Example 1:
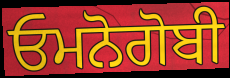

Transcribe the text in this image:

ਓਮਨੋਗੋਬੀ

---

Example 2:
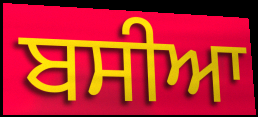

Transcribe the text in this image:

ਬਸੀਆ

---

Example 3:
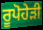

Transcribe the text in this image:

ਰੂਪੋਹੇੜੀ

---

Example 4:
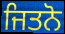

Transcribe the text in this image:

ਜਿਤਨੋ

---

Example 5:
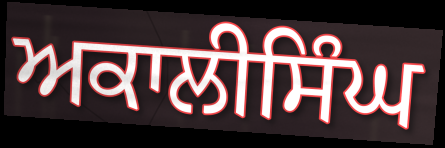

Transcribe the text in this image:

ਅਕਾਲੀਸਿੰਘ